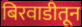
बिरवाडीतून